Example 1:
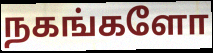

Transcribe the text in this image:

நகங்களோ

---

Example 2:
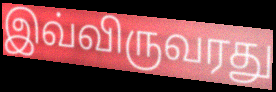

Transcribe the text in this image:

இவ்விருவரது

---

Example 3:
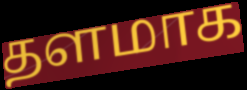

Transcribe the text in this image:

தளமாக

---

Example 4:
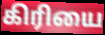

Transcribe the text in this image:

கிரியை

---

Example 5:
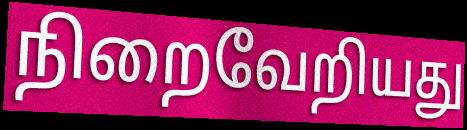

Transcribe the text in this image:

நிறைவேறியது